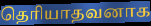
தெரியாதவனாக